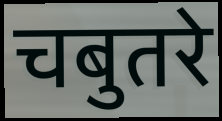
चबुतरे